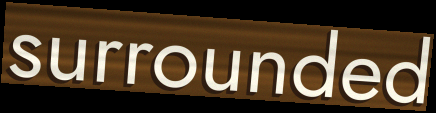
surrounded